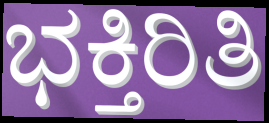
ಭಕ್ತಿರಿತಿ